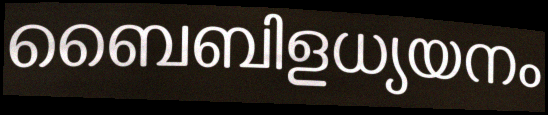
ബൈബിളധ്യയനം